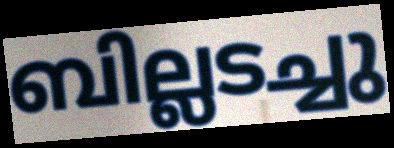
ബില്ലടച്ചു